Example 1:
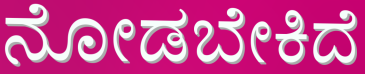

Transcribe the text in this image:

ನೋಡಬೇಕಿದೆ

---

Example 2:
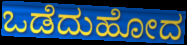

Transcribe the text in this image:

ಒಡೆದುಹೋದ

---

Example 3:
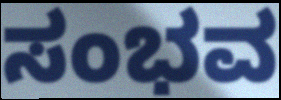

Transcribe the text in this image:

ಸಂಭವ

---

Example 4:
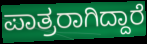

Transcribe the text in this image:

ಪಾತ್ರರಾಗಿದ್ದಾರೆ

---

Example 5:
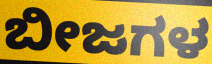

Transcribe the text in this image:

ಬೀಜಗಳ